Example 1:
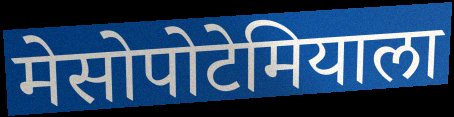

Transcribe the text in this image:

मेसोपोटेमियाला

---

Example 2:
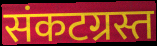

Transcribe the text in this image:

संकटग्रस्त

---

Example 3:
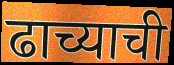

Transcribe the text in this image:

ढाच्याची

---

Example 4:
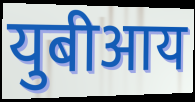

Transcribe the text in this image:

युबीआय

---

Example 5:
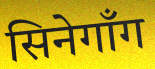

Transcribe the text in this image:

सिनेगाँग